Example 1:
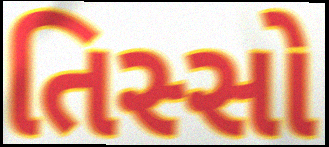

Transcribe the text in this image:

તિસ્સો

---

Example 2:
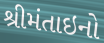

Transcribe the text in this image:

શ્રીમંતાઇનો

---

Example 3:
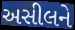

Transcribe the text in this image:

અસીલને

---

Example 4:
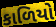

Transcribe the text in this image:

કાળિયો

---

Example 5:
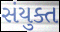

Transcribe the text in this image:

સંયુક્ત